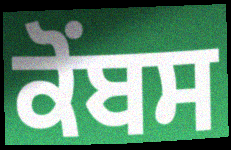
ਕੋਂਬਸ